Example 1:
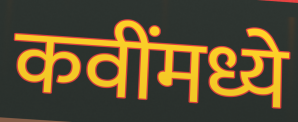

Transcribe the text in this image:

कवींमध्ये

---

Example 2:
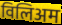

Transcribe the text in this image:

विलिअम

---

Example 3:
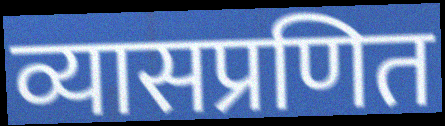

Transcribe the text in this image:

व्यासप्रणित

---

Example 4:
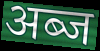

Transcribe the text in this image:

अब्ज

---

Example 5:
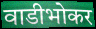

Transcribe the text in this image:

वाडीभोकर